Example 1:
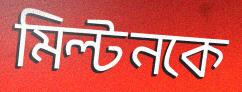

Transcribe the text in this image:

মিল্টনকে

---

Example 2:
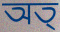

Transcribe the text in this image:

অত্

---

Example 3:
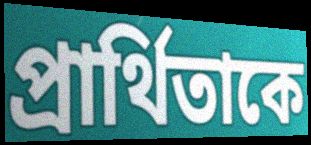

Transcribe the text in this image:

প্রার্থিতাকে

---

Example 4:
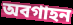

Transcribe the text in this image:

অবগাহন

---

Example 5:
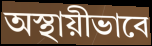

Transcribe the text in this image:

অস্থায়ীভাবে